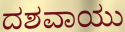
ದಶವಾಯು